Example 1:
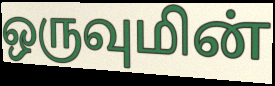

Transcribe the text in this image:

ஒருவுமின்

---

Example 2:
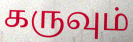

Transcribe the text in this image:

கருவும்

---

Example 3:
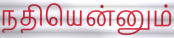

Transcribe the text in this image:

நதியென்னும்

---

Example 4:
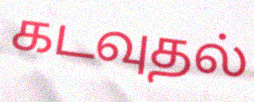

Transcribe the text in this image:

கடவுதல்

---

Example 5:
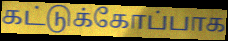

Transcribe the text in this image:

கட்டுக்கோப்பாக